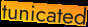
tunicated